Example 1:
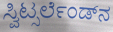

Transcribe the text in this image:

ಸ್ವಿಟ್ಸರ್ಲೆಂಡ್‌ನ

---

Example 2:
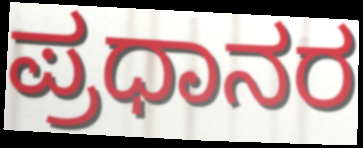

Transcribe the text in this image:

ಪ್ರಧಾನರ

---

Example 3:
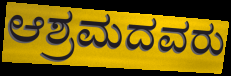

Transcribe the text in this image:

ಆಶ್ರಮದವರು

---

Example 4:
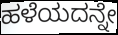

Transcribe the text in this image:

ಹಳೆಯದನ್ನೇ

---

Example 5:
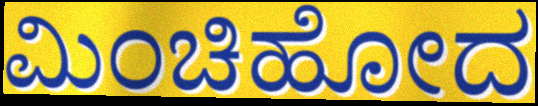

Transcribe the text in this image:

ಮಿಂಚಿಹೋದ